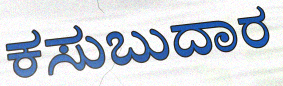
ಕಸುಬುದಾರ